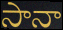
సానా